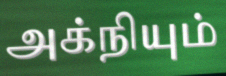
அக்நியும்